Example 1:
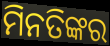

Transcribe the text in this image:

ମିନତିଙ୍କର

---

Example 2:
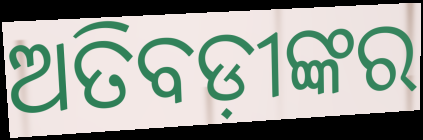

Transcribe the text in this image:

ଅତିବଡ଼ୀଙ୍କର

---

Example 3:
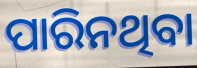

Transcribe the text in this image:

ପାରିନଥିବା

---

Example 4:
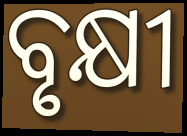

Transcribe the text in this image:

ବୃକ୍ଷୀ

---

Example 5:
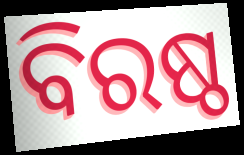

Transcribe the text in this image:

ବିରଷ୍ଠ